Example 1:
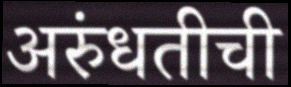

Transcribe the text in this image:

अरुंधतीची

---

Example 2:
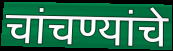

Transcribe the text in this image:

चांचण्यांचे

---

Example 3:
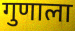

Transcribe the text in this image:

गुणाला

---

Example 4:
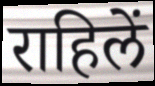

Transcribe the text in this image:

राहिलें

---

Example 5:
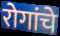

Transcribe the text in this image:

रोगांचे